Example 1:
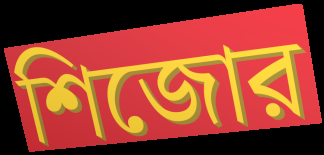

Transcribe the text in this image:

শিজোর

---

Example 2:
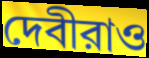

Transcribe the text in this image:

দেবীরাও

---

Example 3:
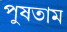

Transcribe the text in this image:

পুষতাম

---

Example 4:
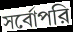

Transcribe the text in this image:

সর্বোপরি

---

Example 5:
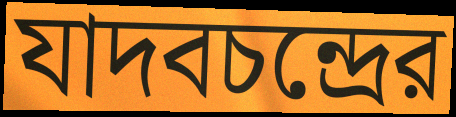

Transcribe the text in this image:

যাদবচন্দ্রের